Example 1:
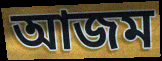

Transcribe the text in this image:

আজম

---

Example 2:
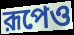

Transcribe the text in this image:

রূপেও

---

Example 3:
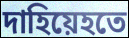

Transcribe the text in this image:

দাহিয়েহতে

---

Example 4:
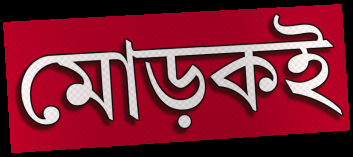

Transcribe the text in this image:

মোড়কই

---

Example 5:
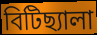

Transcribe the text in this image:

বিটিছ্যালা